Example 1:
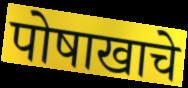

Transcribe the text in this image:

पोषाखाचे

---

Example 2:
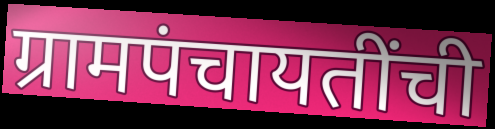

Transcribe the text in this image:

ग्रामपंचायतींची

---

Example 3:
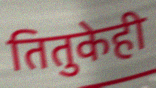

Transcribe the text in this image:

तितुकेही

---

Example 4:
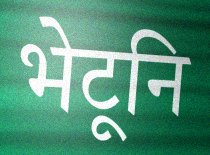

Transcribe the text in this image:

भेटूनि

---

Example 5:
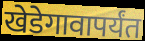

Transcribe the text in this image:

खेडेगावापर्यंत